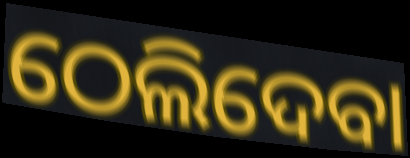
ଠେଲିଦେବା